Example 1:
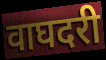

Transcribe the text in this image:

वाघदरी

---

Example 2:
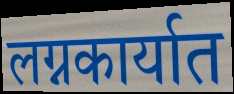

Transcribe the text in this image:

लग्नकार्यात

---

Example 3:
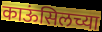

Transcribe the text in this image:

काऊंसिलच्या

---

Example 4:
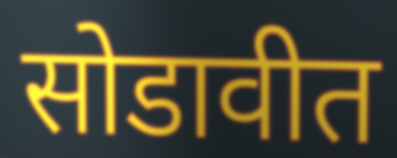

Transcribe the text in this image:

सोडावीत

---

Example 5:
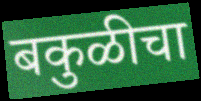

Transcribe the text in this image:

बकुळीचा